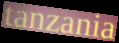
tanzania